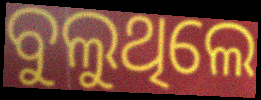
ବୁଲୁଥିଲେ